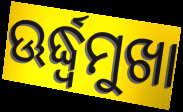
ଊର୍ଦ୍ଧ୍ବମୁଖା